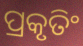
ପ୍ରକୃତିଂ